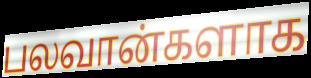
பலவான்களாக